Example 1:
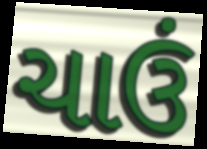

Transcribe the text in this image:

ચાઉં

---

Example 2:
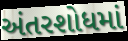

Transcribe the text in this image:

અંતરશોધમાં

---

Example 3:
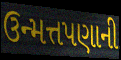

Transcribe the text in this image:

ઉન્મત્તપણાની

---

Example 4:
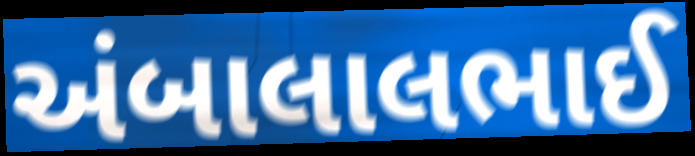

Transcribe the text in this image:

અંબાલાલભાઈ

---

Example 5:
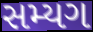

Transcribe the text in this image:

સમ્યગ